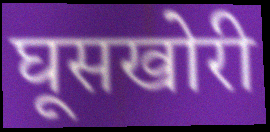
घूसखोरी